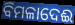
ବିମଳାଦେଈ